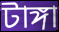
টাঙ্গা